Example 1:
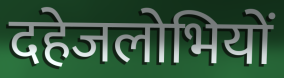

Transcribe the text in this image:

दहेजलोभियों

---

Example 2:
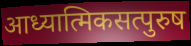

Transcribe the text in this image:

आध्यात्मिकसत्पुरुष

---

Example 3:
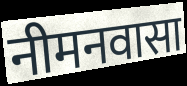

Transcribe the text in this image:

नीमनवासा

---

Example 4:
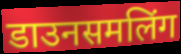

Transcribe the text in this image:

डाउनसमलिंग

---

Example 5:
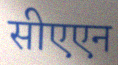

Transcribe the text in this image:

सीएएन